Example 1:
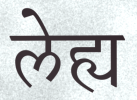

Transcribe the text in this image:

लेह्य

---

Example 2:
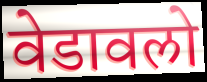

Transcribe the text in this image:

वेडावलो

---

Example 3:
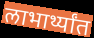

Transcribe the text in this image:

लाभार्थ्यांत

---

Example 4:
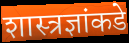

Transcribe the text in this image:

शास्त्रज्ञांकडे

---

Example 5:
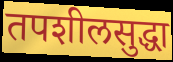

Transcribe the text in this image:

तपशीलसुद्धा